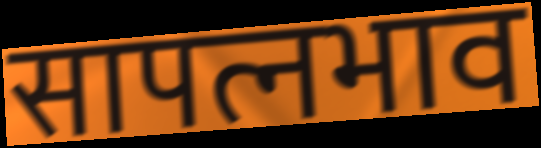
सापत्नभाव